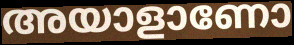
അയാളാണോ